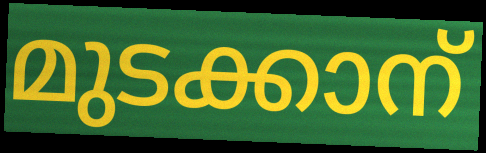
മുടക്കാന്